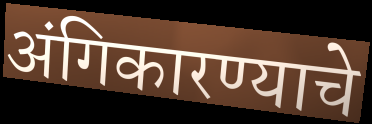
अंगिकारण्याचे